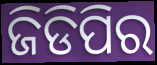
ଜିଡିପିର